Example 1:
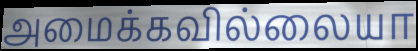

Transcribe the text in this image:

அமைக்கவில்லையா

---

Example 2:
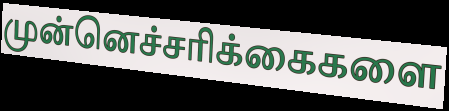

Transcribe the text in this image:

முன்னெச்சரிக்கைகளை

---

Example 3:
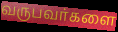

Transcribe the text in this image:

வருபவர்களை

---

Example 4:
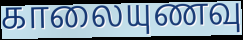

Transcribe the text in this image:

காலையுணவு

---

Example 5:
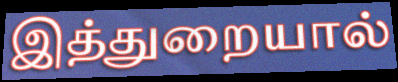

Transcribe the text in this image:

இத்துறையால்